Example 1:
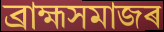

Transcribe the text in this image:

ব্ৰাহ্মসমাজৰ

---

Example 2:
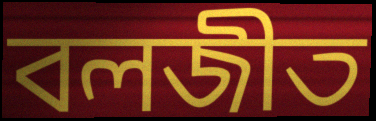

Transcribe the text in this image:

বলজীত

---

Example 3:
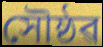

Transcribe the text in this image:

সৌষ্ঠৱ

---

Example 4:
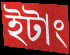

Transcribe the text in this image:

ইটাং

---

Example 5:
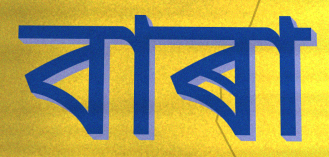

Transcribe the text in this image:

বাৰা